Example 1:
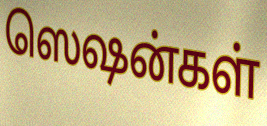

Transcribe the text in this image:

ஸெஷன்கள்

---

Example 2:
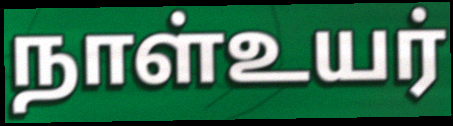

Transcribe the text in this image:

நாள்உயர்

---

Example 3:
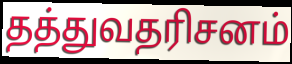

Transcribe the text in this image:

தத்துவதரிசனம்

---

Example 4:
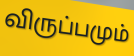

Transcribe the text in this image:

விருப்பமும்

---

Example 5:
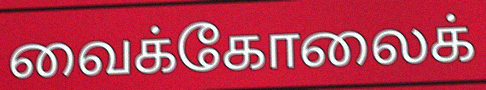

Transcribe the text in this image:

வைக்கோலைக்